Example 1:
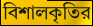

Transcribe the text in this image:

বিশালকৃতির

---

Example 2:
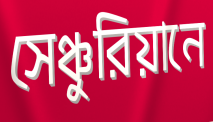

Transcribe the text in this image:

সেঞ্চুরিয়ানে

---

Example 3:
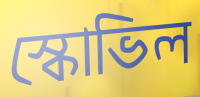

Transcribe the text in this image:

স্কোভিল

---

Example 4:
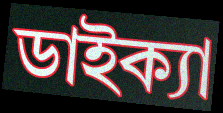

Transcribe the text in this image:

ডাইক্যা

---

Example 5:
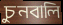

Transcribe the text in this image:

চুনবালি